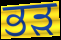
ਭੜ